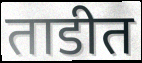
ताडीत